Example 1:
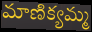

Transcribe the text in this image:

మాణిక్యమ్మ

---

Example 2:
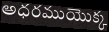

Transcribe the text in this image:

అధరముయొక్క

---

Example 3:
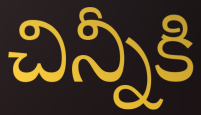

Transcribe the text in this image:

చిన్నీకి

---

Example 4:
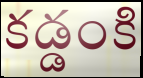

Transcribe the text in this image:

కడ్డంకి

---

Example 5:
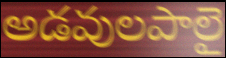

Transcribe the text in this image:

అడవులపాలై